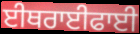
ਈਥਰਾਈਫਾਈ